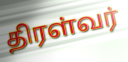
திரள்வர்